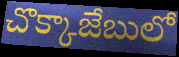
చొక్కాజేబులో